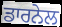
ਡਾਰਨੇਲ